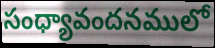
సంధ్యావందనములో